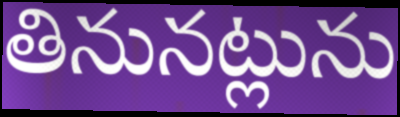
తినునట్లును